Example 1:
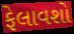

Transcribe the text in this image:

ફેલાવશો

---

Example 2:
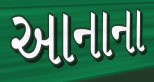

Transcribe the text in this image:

આનાના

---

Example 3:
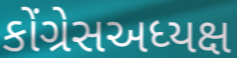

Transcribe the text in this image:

કોંગ્રેસઅધ્યક્ષ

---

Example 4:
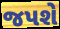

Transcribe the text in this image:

જપશે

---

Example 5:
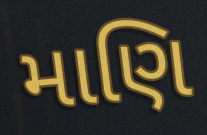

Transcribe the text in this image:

માણિ